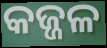
କଜ୍ଜଳ